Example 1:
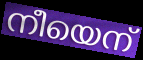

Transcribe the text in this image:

നീയെന്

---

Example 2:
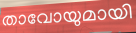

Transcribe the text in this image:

താവോയുമായി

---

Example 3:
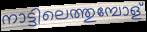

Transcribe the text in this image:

നാട്ടിലെത്തുമ്പോള്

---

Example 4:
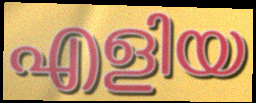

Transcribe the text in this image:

എളിയ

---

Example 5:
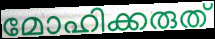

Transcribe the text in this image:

മോഹിക്കരുത്